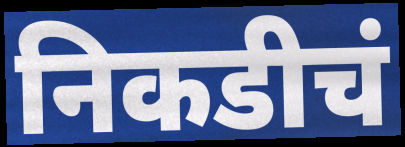
निकडीचं